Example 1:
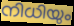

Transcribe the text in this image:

നിധിയും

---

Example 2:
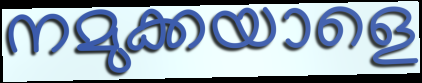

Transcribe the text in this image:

നമുക്കയാളെ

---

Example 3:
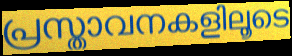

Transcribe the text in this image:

പ്രസ്താവനകളിലൂടെ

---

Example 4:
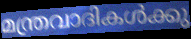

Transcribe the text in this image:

മന്ത്രവാദികൾക്കു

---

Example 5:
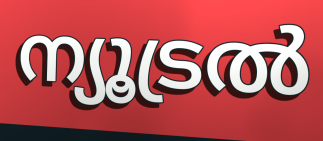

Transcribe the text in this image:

ന്യൂട്രൽ